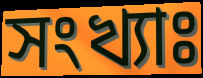
সংখ্যাঃ